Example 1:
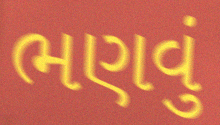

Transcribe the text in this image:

ભણવું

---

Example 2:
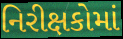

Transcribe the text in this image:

નિરીક્ષકોમાં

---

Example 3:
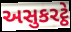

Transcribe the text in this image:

અસુકરટ્ઠે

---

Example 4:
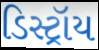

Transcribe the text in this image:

ડિસ્ટ્રૉય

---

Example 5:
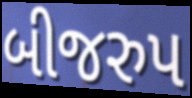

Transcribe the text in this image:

બીજરુપ